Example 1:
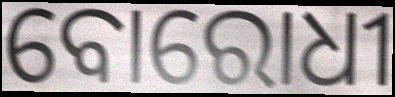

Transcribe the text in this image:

ବୋରୋଧୀ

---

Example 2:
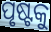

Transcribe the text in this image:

ପୃଷ୍ଟକୁ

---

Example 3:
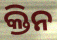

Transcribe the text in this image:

କ୍ତିନ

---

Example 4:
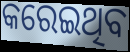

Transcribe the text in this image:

କରେଇଥିବ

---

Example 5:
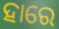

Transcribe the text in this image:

ହାରେ